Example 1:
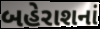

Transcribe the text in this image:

બહેરાશનાં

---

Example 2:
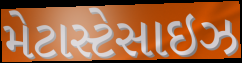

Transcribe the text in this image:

મેટાસ્ટેસાઇઝ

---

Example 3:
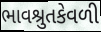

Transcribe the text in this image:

ભાવશ્રુતકેવળી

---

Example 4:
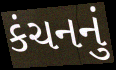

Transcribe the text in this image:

કંચનનું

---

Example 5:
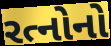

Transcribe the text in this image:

રત્નોનો